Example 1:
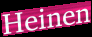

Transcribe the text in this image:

Heinen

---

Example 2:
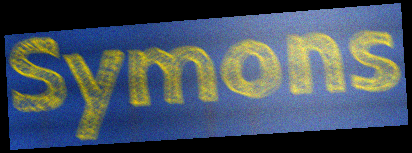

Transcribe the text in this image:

Symons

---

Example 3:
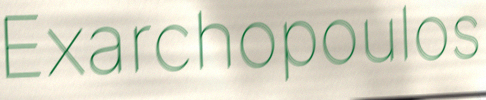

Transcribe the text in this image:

Exarchopoulos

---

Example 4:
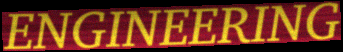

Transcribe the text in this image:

ENGINEERING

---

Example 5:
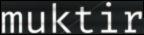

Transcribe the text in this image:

muktir